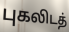
புகலிடத்